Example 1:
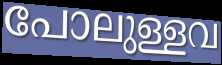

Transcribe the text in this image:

പോലുള്ളവ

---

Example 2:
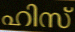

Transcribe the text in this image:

ഹിസ്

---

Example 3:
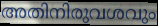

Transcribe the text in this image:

അതിനിരുവശവും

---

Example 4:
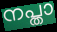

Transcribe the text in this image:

നപ്താ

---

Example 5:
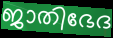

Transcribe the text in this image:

ജാതിഭേദ